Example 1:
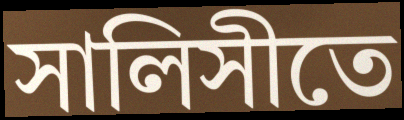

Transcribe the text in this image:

সালিসীতে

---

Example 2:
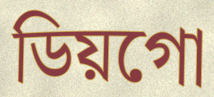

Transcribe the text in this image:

ডিয়গো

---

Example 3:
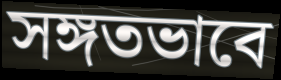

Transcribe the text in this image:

সঙ্গতভাবে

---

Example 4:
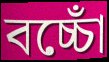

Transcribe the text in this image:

বচ্চোঁ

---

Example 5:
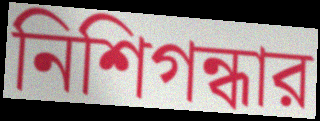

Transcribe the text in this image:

নিশিগন্ধার